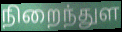
நிறைந்துள